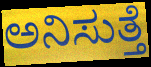
ಅನಿಸುತ್ತೆ